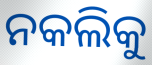
ନକଲିକୁ